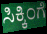
ಸಿಕ್ಕಿಂಗೆ